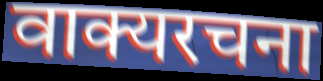
वाक्यरचना